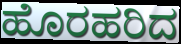
ಹೊರಹರಿದ